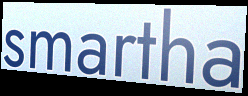
smartha